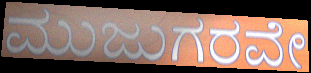
ಮುಜುಗರವೇ